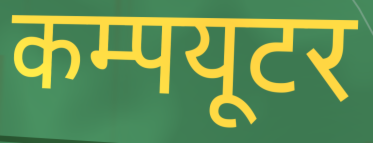
कम्पयूटर